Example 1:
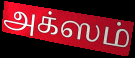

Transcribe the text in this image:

அக்ஸம்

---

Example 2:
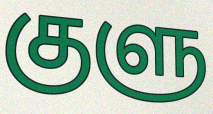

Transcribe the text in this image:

குளு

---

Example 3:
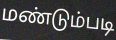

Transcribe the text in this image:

மண்டும்படி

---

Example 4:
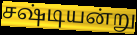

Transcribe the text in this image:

சஷ்டியன்று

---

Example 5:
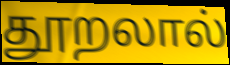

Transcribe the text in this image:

தூறலால்